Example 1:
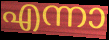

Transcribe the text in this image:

എന്നാ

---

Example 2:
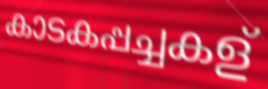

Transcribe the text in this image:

കാടകപ്പച്ചകള്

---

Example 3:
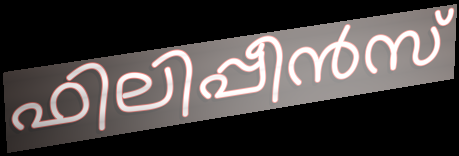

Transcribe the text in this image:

ഫിലിപ്പീൻസ്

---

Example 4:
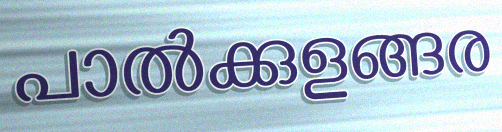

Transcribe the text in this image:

പാൽക്കുളങ്ങര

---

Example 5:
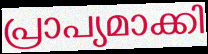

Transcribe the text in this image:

പ്രാപ്യമാക്കി